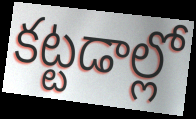
కట్టడాల్లో